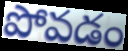
పోవడం